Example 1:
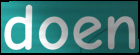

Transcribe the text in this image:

doen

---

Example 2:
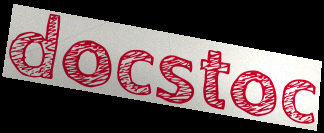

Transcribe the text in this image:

docstoc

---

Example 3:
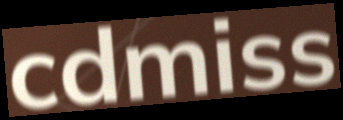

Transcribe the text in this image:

cdmiss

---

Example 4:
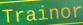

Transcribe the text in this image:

Trainor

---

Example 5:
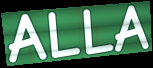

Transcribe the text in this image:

ALLA